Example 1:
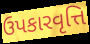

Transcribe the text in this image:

ઉપકારવૃત્તિ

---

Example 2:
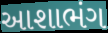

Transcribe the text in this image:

આશાભંગ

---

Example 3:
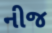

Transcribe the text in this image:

નીજ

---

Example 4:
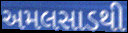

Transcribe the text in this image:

અમલસાડથી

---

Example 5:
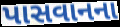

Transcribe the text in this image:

પાસવાનના